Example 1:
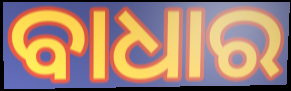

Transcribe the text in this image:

ବାଧାର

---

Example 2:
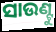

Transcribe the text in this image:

ସାଉଣ୍ଟୁ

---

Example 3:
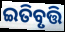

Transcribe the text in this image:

ଇତିବୃତ୍ତି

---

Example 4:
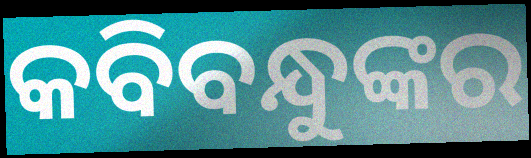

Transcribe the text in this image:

କବିବନ୍ଧୁଙ୍କର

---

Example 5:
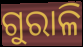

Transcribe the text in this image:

ଗୁରାଳି